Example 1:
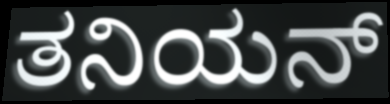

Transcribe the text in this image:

ತನಿಯನ್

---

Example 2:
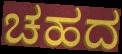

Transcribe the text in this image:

ಚಹದ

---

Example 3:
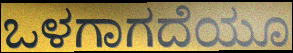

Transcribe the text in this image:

ಒಳಗಾಗದೆಯೂ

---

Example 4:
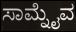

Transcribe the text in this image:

ಸಾಮ್ನೈವ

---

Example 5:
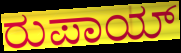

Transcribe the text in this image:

ರುಪಾಯ್